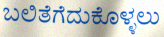
ಬಲಿತೆಗೆದುಕೊಳ್ಳಲು